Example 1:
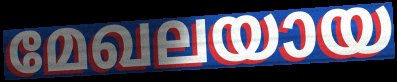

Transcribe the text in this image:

മേഖലയായ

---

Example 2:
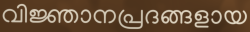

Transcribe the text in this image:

വിജ്ഞാനപ്രദങ്ങളായ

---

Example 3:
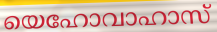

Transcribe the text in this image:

യെഹോവാഹാസ്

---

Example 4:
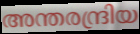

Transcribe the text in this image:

അന്തരന്ദ്രിയ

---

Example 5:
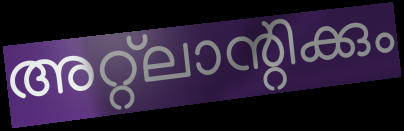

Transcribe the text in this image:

അറ്റ്ലാന്റിക്കും